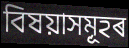
বিষয়াসমূহৰ